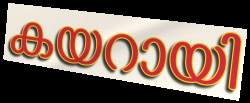
കയറായി